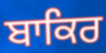
ਬਾਕਿਰ